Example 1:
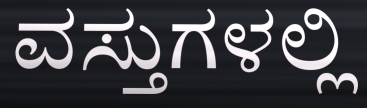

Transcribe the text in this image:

ವಸ್ತುಗಳಲ್ಲಿ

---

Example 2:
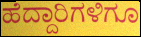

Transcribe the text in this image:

ಹೆದ್ದಾರಿಗಳಿಗೂ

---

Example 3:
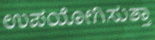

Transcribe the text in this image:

ಉಪಯೋಗಿಸುತ್ತಾ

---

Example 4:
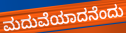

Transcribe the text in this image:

ಮದುವೆಯಾದನೆಂದು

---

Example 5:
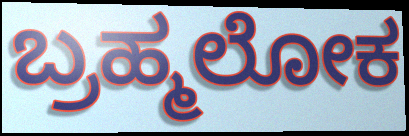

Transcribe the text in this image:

ಬ್ರಹ್ಮಲೋಕ